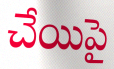
చేయిపై